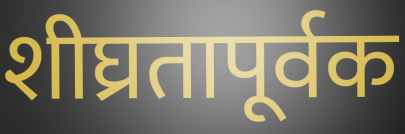
शीघ्रतापूर्वक